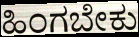
ಹಿಂಗಬೇಕು